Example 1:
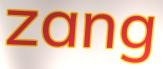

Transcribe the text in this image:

zang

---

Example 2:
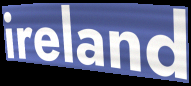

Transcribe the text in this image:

ireland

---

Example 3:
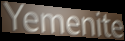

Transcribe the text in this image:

Yemenite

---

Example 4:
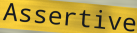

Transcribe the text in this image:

Assertive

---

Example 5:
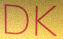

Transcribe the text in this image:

DK